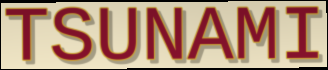
TSUNAMI